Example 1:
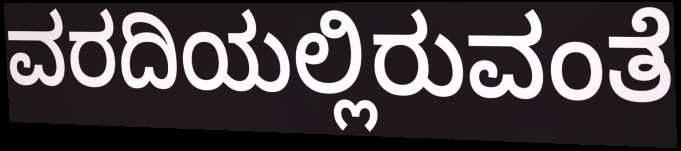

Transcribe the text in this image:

ವರದಿಯಲ್ಲಿರುವಂತೆ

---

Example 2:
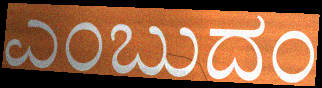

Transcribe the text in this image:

ಎಂಬುದಂ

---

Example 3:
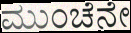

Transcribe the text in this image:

ಮುಂಚೆನೇ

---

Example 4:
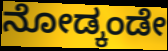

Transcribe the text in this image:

ನೋಡ್ಕಂಡೇ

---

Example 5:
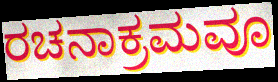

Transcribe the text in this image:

ರಚನಾಕ್ರಮವೂ